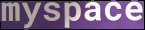
myspace